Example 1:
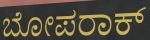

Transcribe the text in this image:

ಬೋಪರಾಕ್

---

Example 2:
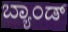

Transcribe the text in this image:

ಬ್ಯಾಂಡ್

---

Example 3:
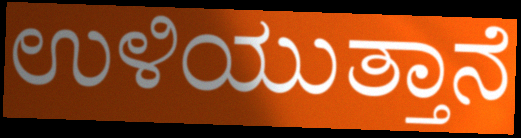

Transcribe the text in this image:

ಉಳಿಯುತ್ತಾನೆ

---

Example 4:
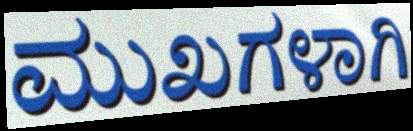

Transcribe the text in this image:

ಮುಖಗಳಾಗಿ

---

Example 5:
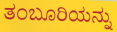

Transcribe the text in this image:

ತಂಬೂರಿಯನ್ನು